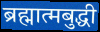
ब्रह्मात्मबुद्धी